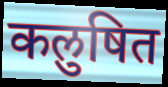
कलुषित